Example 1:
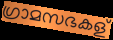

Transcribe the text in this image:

ഗ്രാമസഭകള്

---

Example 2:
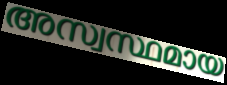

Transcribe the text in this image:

അസ്വസ്ഥമായ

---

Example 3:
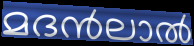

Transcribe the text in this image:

മദൻലാൽ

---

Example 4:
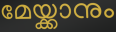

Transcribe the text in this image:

മേയ്ക്കാനും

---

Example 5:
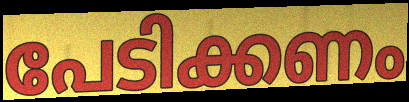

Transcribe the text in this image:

പേടിക്കണം